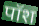
पॉश